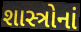
શાસ્ત્રોનાં